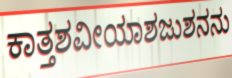
ಕಾತ್ತಶವೀಯಾಶಜುಶನನು